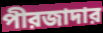
পীরজাদার